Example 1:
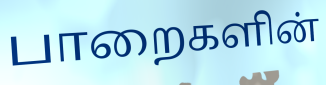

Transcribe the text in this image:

பாறைகளின்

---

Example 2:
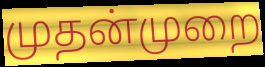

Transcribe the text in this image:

முதன்முறை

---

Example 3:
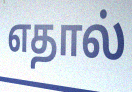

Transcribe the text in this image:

எதால்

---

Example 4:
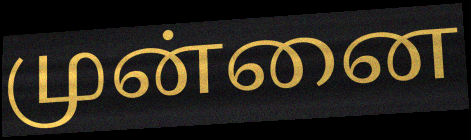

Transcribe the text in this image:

முன்னை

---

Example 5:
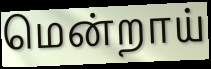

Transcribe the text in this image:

மென்றாய்